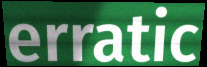
erratic